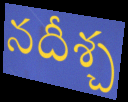
నదీశ్చ